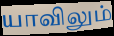
யாவிலும்